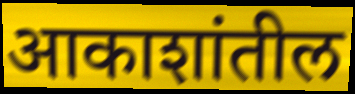
आकाशांतील